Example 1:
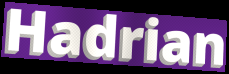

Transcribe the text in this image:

Hadrian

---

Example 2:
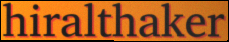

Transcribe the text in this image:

hiralthaker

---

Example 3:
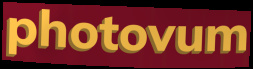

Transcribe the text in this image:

photovum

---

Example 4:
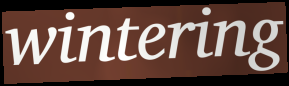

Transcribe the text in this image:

wintering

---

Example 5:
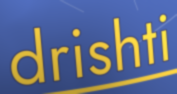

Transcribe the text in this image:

drishti